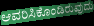
ಆವರಿಸಿಕೊಂಡಿರುವುದು